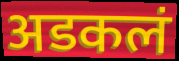
अडकलं